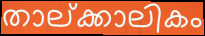
താല്ക്കാലികം